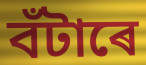
বঁটাৰে